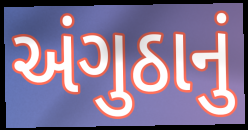
અંગુઠાનું